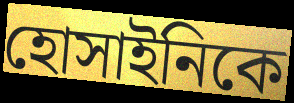
হোসাইনিকে